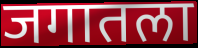
जगातला